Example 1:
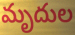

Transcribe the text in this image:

మృదుల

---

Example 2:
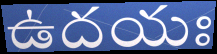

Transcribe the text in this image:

ఉదయః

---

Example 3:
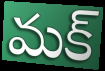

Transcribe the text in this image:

మక్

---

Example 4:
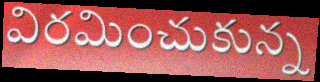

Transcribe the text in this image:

విరమించుకున్న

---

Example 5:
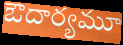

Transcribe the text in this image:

ఔదార్యమూ